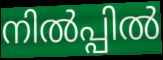
നിൽപ്പിൽ